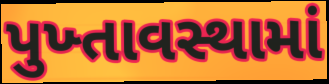
પુખ્તાવસ્થામાં